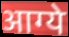
आग्ये